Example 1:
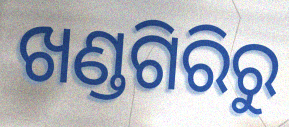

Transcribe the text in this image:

ଖଣ୍ଡଗିରିରୁ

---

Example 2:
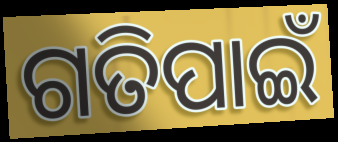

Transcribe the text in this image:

ଗତିପାଇଁ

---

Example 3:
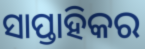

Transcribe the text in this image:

ସାପ୍ତାହିକର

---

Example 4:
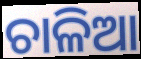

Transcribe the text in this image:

ଚାଳିଆ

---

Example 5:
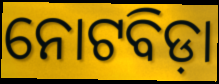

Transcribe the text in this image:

ନୋଟବିଡ଼ା